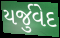
યર્જુવેદ